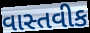
વાસ્તવીક